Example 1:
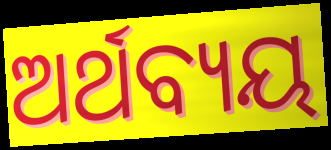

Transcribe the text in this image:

ଅର୍ଥବ୍ୟୟ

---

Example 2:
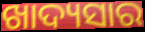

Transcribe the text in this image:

ଖାଦ୍ୟସାର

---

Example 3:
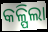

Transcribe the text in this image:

କଳ୍ପିଲା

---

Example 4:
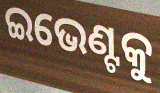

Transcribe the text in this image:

ଇଭେଣ୍ଟକୁ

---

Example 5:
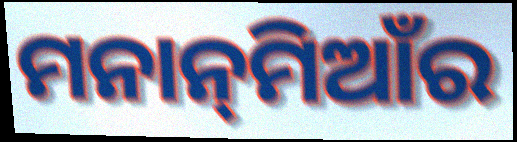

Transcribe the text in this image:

ମନାନ୍‌ମିଆଁର